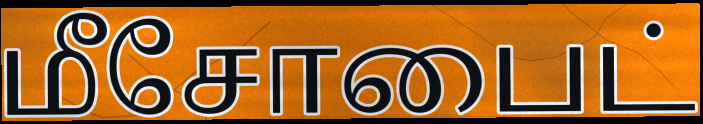
மீசோபைட்